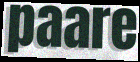
paare